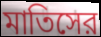
মাতিসের